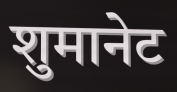
शुमानेट